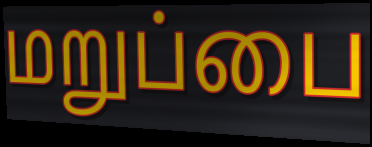
மறுப்பை